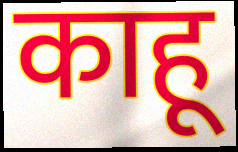
काहू